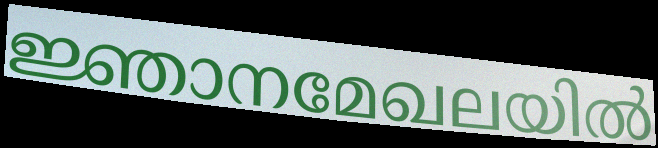
ജ്ഞാനമേഖലയിൽ